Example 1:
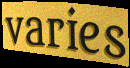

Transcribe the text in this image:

varies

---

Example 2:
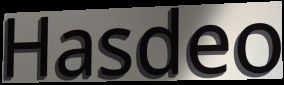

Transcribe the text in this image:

Hasdeo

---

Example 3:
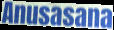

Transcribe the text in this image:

Anusasana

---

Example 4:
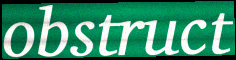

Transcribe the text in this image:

obstruct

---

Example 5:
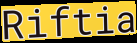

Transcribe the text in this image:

Riftia